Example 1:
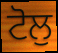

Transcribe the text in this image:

ਟੋਲੁ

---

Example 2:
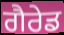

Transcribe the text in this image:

ਗੈਰੇਡ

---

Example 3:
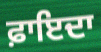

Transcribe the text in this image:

ਫ਼ਾਇਦਾ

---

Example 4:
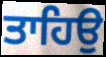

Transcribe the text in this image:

ਤਾਹਿਉ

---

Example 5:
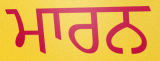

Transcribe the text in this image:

ਮਾਰਨ